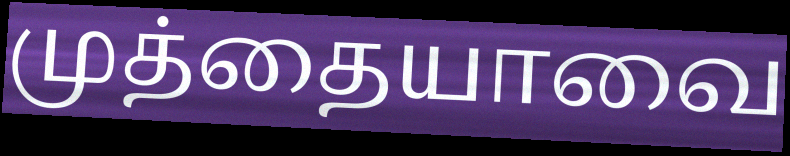
முத்தையாவை